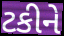
ટકીને